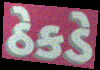
ઠેકડે